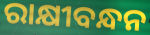
ରାକ୍ଷୀବନ୍ଧନ